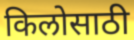
किलोसाठी